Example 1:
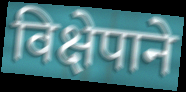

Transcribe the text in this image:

विक्षेपाने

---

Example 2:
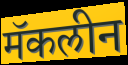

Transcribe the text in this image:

मॅकलीन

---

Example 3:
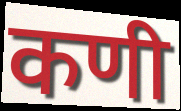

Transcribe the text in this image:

कणी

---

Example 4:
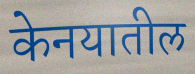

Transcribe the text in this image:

केनयातील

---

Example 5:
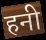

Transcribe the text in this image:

हनी